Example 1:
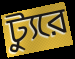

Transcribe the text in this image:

ট্যুরে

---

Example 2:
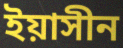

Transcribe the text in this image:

ইয়াসীন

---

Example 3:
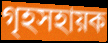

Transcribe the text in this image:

গৃহসহায়ক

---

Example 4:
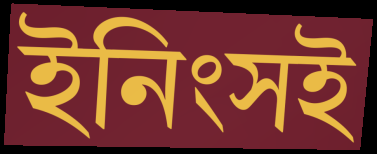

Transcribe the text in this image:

ইনিংসই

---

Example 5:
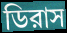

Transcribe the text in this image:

ডিরাস